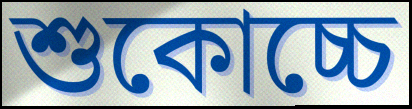
শুকোচ্চে